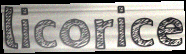
licorice